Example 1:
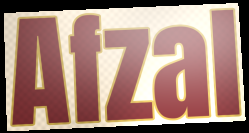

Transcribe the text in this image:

Afzal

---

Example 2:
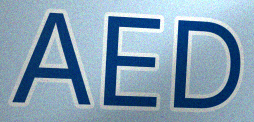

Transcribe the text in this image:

AED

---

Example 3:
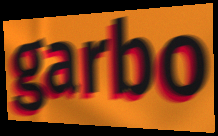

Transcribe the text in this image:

garbo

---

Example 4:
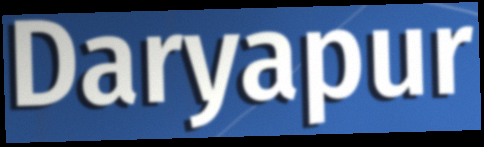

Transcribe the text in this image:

Daryapur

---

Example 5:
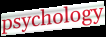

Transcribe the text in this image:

psychology